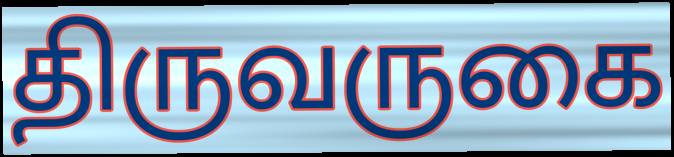
திருவருகை